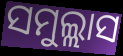
ସମୁଲ୍ଲାସ